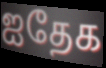
ஐதேக